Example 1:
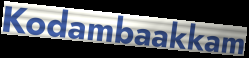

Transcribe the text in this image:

Kodambaakkam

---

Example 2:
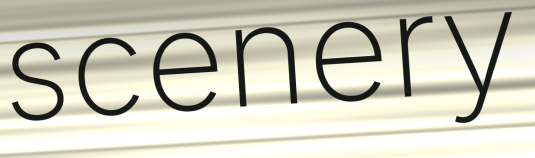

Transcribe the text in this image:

scenery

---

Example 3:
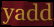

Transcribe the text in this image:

yadd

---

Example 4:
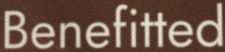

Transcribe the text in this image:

Benefitted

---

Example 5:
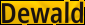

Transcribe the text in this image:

Dewald